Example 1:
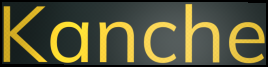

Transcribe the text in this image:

Kanche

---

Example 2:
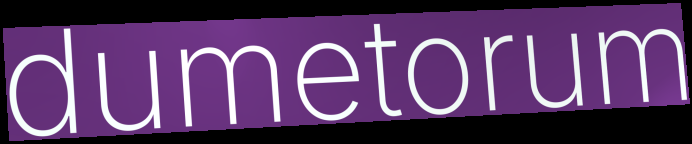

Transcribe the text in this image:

dumetorum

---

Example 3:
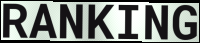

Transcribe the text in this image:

RANKING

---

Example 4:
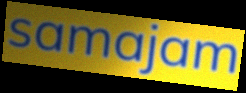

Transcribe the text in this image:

samajam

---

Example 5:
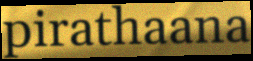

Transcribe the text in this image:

pirathaana